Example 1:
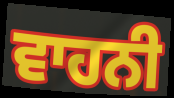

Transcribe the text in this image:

ਵਾਹਨੀ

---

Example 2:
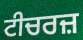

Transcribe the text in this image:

ਟੀਚਰਜ਼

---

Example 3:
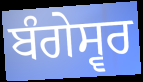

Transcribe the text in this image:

ਬੰਗੇਸ੍ਵਰ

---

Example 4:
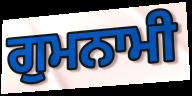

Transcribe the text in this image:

ਗੁਮਨਾਮੀ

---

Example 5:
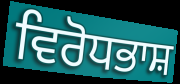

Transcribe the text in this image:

ਵਿਰੋਧਭਾਸ਼